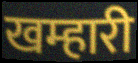
खम्हारी